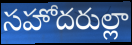
సహోదరుల్లా